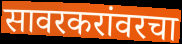
सावरकरांवरचा